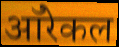
ऑरेकल